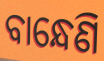
ବାନ୍ଧେଣି